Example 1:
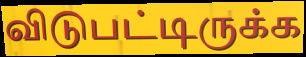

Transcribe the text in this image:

விடுபட்டிருக்க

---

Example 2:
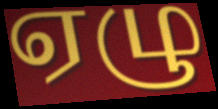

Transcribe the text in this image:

ஏழு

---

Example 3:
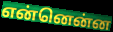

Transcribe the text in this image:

என்னென்ன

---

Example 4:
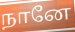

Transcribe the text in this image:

நானே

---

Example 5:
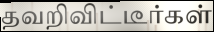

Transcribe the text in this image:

தவறிவிட்டீர்கள்